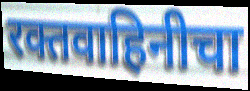
रक्तवाहिनीचा